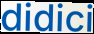
didici